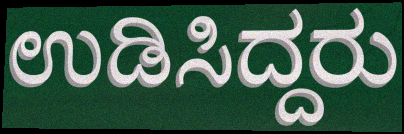
ಉಡಿಸಿದ್ದರು